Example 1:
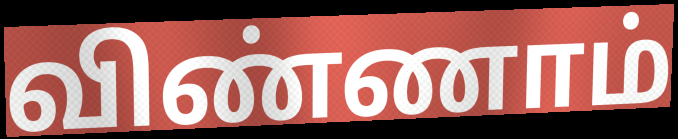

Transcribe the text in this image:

விண்ணாம்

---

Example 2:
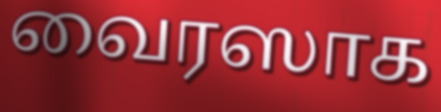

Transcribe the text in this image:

வைரஸாக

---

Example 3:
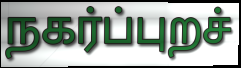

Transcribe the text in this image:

நகர்ப்புறச்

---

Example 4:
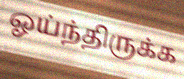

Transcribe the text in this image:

ஓய்ந்திருக்க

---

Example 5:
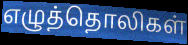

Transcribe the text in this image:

எழுத்தொலிகள்